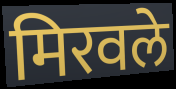
मिरवले